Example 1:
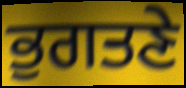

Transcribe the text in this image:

ਭੁਗਤਣੇ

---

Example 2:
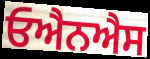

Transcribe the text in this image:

ਓਐਨਐਸ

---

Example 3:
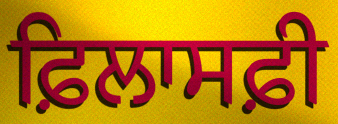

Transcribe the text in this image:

ਫ਼ਿਲਾਸਫ਼ੀ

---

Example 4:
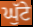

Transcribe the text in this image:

ਘੁੱਟੇ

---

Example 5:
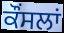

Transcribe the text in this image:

ਕੌਂਸਲਾਂ